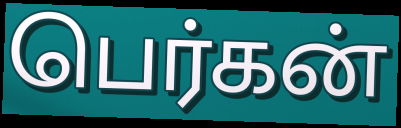
பெர்கன்